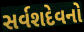
સર્વશદેવનો